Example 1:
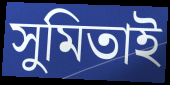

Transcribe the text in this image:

সুমিতাই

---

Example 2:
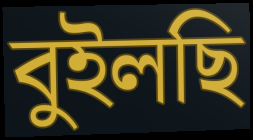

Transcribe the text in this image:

বুইলছি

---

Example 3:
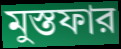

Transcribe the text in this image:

মুস্তফার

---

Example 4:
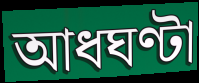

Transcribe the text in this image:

আধঘণ্টা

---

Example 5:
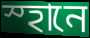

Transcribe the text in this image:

স্হানে